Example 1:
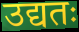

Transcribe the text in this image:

उद्यतः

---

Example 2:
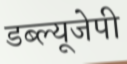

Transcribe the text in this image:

डब्ल्यूजेपी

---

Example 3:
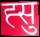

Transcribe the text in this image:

ह्सु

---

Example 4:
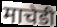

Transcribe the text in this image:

माचेडी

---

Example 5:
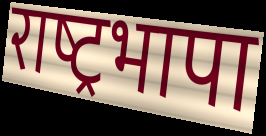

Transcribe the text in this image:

राष्ट्रभापा